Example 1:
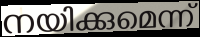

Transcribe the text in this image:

നയിക്കുമെന്ന്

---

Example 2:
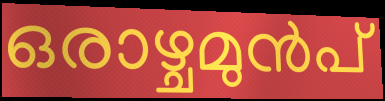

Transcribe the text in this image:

ഒരാഴ്ചമുൻപ്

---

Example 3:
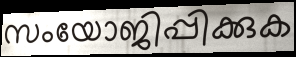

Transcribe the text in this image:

സംയോജിപ്പിക്കുക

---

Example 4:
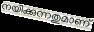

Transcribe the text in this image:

നയിക്കുന്നതുമാണ്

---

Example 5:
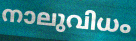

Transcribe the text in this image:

നാലുവിധം